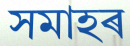
সমাহৰ